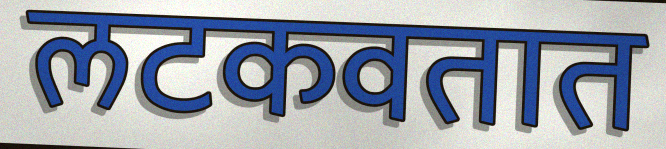
लटकवतात